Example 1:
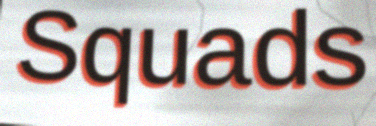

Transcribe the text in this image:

Squads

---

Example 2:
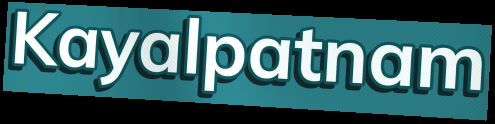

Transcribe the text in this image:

Kayalpatnam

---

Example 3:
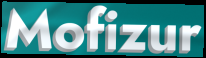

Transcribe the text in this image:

Mofizur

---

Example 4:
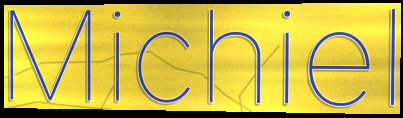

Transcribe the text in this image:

Michiel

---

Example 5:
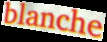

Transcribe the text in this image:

blanche